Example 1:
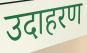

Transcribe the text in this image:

उदाहरण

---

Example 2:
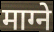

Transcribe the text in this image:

माग्ने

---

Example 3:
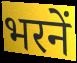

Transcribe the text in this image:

भरनें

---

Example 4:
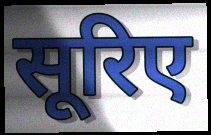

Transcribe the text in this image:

सूरिए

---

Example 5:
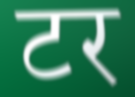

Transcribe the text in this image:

टर